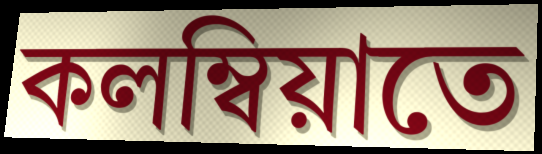
কলম্বিয়াতে